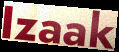
Izaak